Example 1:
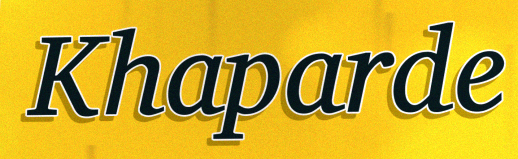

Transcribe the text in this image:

Khaparde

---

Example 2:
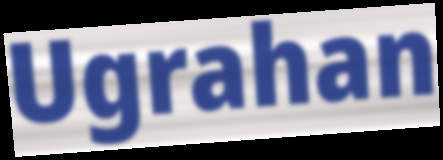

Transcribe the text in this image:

Ugrahan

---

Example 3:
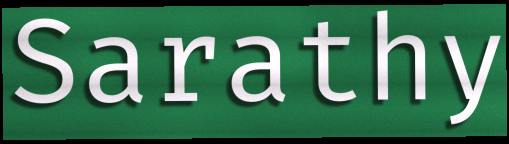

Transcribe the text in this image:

Sarathy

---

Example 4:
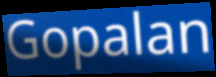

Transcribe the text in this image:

Gopalan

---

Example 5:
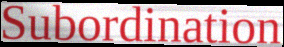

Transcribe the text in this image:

Subordination